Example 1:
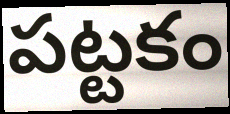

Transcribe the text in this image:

పట్టకం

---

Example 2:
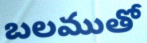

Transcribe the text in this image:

బలముతో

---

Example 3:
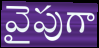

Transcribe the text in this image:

వైపుగా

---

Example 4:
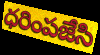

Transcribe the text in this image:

ధరింపజేసి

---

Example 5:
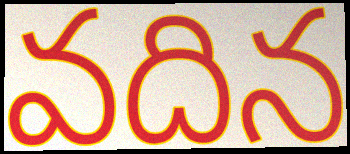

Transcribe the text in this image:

వదిన